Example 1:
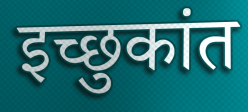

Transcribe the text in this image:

इच्छुकांत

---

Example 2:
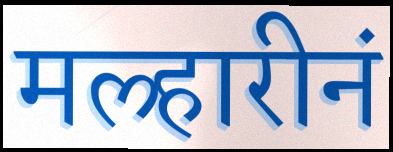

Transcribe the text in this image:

मल्हारीनं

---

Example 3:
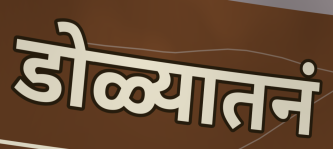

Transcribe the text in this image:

डोळ्यातनं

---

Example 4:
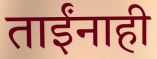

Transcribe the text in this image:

ताईंनाही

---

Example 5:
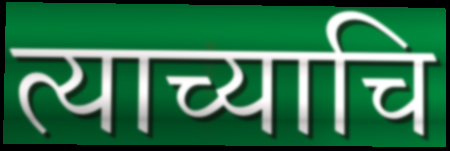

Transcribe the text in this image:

त्याच्याचि